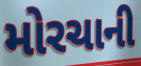
મોરચાની